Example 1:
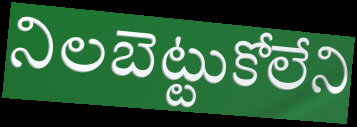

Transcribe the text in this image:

నిలబెట్టుకోలేని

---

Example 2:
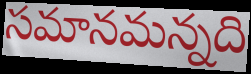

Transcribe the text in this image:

సమానమన్నది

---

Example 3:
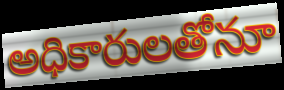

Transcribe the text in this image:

అధికారులతోనూ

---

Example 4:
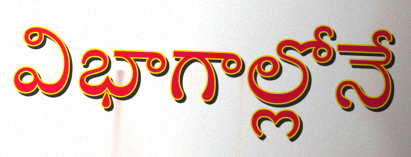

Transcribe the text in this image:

విభాగాల్లోనే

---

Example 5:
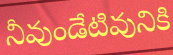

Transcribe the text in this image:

నీవుండేటివునికి